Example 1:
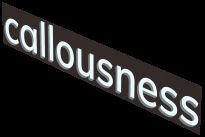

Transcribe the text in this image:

callousness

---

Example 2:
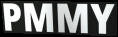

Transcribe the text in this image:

PMMY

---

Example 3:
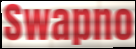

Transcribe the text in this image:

Swapno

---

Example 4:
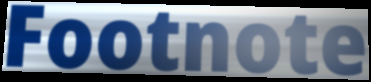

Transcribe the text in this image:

Footnote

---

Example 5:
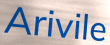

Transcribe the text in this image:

Arivile